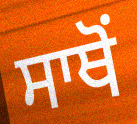
ਸਾਥੋਂ